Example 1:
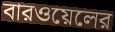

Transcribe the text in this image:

বারওয়েলের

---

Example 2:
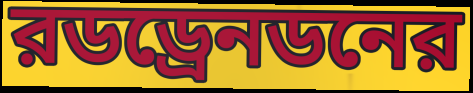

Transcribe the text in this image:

রডড্রেনডনের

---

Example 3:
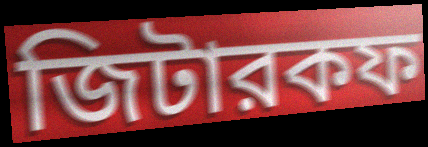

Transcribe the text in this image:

জিটারকফ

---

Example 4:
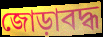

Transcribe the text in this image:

জোড়াবদ্ধ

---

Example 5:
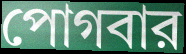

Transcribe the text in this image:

পোগবার